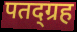
पतद्ग्रह